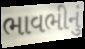
ભાવભીનું